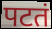
पटतं